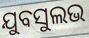
ଯୁବସୁଲଭ